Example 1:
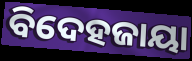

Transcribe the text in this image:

ବିଦେହଜାୟା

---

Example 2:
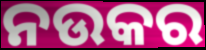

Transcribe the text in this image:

ନଉକର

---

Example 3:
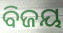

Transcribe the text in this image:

ବିଜୟ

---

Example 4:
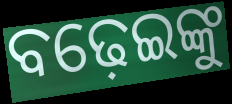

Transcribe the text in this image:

ବଢ଼େଇଙ୍କୁ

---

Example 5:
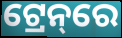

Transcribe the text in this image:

ଟ୍ରେନ୍‌ରେ